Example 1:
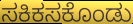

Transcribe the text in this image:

ಸಕಿಕಸಕೊಂಡು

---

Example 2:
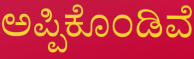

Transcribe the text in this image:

ಅಪ್ಪಿಕೊಂಡಿವೆ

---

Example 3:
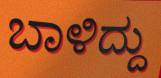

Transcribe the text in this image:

ಬಾಳಿದ್ದು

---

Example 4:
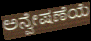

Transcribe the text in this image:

ಅನ್ವೇಷಣೆಯೆ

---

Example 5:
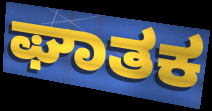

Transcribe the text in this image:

ಘಾತಕ